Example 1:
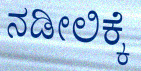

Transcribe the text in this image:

ನಡೀಲಿಕ್ಕೆ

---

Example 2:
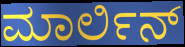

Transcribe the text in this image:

ಮಾರ್ಲಿನ್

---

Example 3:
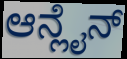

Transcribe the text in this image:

ಆನ್ಲೈನ್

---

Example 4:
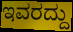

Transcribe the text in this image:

ಇವರದ್ದು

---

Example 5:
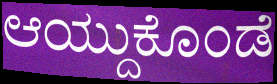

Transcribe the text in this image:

ಆಯ್ದುಕೊಂಡೆ